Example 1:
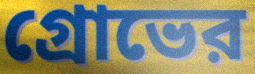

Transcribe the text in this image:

গ্রোভের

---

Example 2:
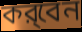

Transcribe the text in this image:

কর্‌বেন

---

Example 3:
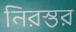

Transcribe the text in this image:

নিরস্তর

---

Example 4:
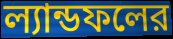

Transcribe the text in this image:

ল্যান্ডফলের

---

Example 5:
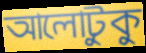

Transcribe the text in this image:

আলোটুকু